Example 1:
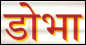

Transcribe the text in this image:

डोभा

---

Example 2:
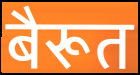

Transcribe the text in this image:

बैरूत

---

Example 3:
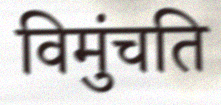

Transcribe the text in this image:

विमुंचति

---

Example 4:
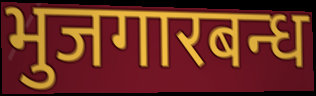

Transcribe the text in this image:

भुजगारबन्ध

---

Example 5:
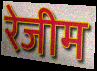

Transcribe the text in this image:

रेजीम